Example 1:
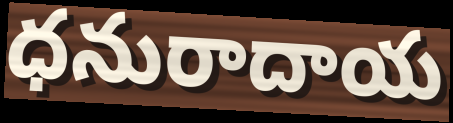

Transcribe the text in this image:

ధనురాదాయ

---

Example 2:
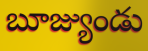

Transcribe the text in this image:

బూజ్యుండు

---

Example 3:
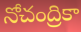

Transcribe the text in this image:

నోచంద్రికా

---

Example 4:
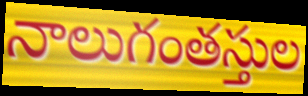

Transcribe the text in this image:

నాలుగంతస్తుల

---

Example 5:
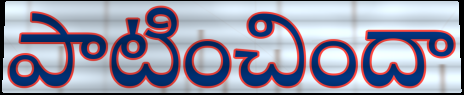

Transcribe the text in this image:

పాటించిందా